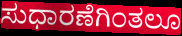
ಸುಧಾರಣೆಗಿಂತಲೂ